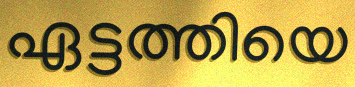
ഏട്ടത്തിയെ